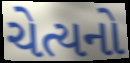
ચેત્યનો